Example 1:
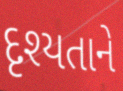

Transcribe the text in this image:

દૃશ્યતાને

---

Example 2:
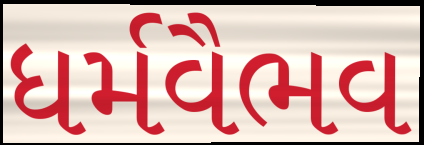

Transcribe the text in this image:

ધર્મવૈભવ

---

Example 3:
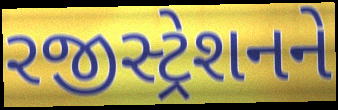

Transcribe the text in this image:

રજીસ્ટ્રેશનને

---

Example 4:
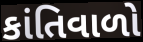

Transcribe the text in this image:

કાંતિવાળો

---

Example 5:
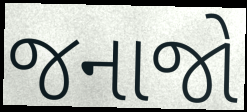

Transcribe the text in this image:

જનાજો